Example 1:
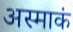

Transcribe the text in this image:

अस्माकं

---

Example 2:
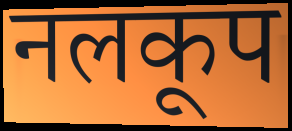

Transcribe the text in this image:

नलकूप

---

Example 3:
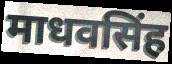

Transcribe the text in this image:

माधवसिंह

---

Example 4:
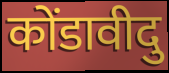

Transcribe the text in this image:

कोंडावीदु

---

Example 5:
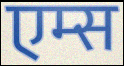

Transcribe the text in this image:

एम्‍स